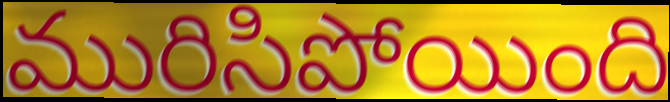
మురిసిపోయింది